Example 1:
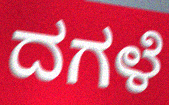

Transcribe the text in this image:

ದಗಳೆ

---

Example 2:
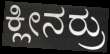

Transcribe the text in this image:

ಕ್ಲೀನರ್ರು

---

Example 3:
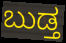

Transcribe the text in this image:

ಬುಡ್ತ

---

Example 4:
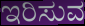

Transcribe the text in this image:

ಇರಿಸುವ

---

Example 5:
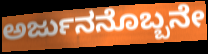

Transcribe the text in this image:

ಅರ್ಜುನನೊಬ್ಬನೇ